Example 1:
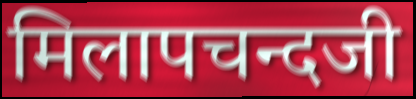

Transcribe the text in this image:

मिलापचन्दजी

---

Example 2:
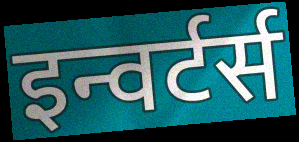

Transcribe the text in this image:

इन्वर्टर्स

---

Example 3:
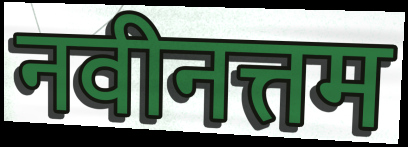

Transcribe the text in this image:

नवीनत्तम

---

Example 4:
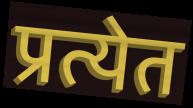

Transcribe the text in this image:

प्रत्येत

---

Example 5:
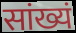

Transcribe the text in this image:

सांख्यं